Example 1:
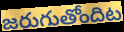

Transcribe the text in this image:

జరుగుతోందిట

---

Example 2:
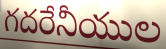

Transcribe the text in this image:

గదరేనీయుల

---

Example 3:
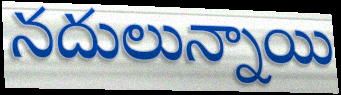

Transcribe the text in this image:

నదులున్నాయి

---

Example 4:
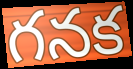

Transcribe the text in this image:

గనక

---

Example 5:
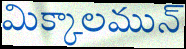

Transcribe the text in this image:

మిక్కాలమున్